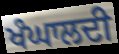
ਖੰਘਾਲਦੀ